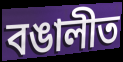
বঙালীত